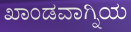
ಖಾಂಡವಾಗ್ನಿಯ